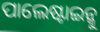
ପାଲେଷ୍ଟାଇନ୍କୁ